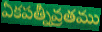
ఏకపత్నీవ్రతము